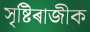
সৃষ্টিৰাজীক